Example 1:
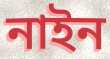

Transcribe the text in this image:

নাইন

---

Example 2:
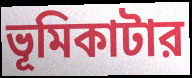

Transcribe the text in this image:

ভূমিকাটার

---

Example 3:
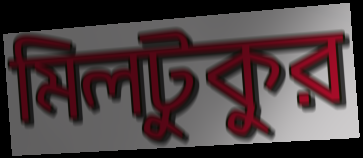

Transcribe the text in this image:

মিলটুকুর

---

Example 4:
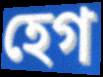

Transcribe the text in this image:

হেগ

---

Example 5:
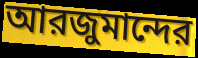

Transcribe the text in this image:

আরজুমান্দের